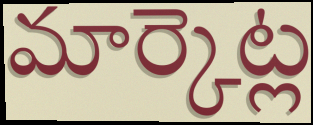
మార్కెట్ల